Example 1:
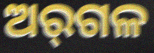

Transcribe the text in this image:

ଅର୍‌ଗଳ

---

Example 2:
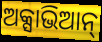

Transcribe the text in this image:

ଅକ୍ସାଭିଆନ୍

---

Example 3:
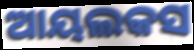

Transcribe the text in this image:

ଆୟଲକସ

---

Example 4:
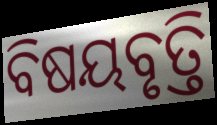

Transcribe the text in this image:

ବିଷୟବୃତ୍ତି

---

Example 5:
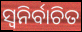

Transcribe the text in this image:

ସ୍ବନିର୍ବାଚିତ